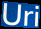
Uri